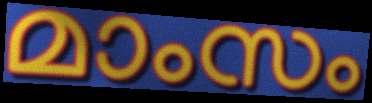
മാംസം